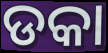
ଡକା